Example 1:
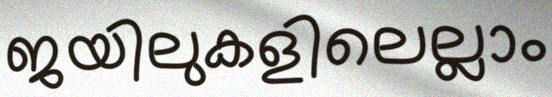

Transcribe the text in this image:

ജയിലുകളിലെല്ലാം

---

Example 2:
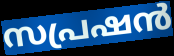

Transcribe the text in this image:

സപ്രഷൻ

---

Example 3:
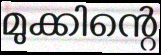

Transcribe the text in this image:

മുക്കിന്റെ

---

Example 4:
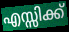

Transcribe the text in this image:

എസ്സിക്ക്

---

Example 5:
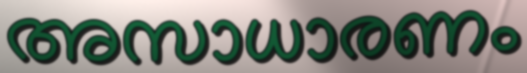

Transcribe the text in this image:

അസാധാരണം